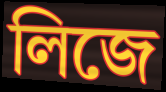
লিজে